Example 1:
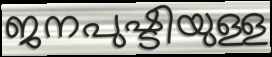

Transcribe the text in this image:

ജനപുഷ്ടിയുള്ള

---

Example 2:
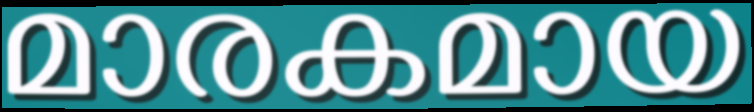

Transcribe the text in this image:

മാരകമായ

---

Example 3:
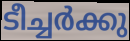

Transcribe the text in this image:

ടീച്ചർക്കു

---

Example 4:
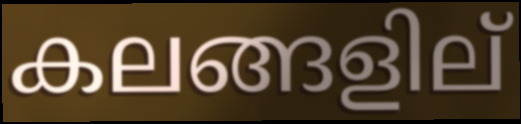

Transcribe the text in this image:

കലങ്ങളില്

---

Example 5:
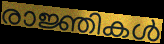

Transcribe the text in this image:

രാജ്ഞികൾ